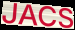
JACS